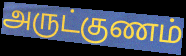
அருட்குணம்